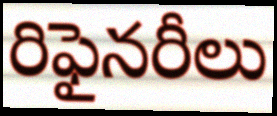
రిఫైనరీలు